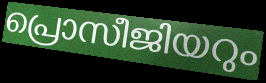
പ്രൊസീജിയറും